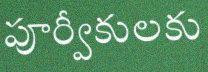
పూర్వీకులకు